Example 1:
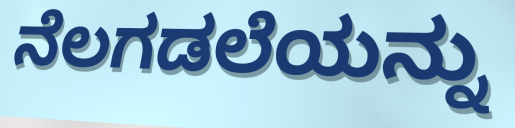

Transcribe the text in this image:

ನೆಲಗಡಲೆಯನ್ನು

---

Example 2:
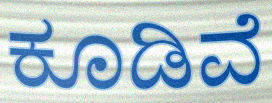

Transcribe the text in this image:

ಕೂಡಿವೆ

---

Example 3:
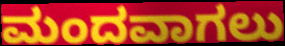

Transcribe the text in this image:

ಮಂದವಾಗಲು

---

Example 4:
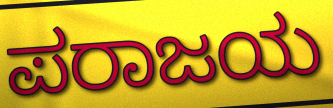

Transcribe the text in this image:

ಪರಾಜಯ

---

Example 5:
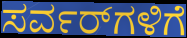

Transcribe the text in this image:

ಸರ್ವರ್‌ಗಳಿಗೆ